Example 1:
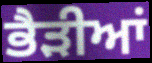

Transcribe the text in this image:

ਭੈੜੀਆਂ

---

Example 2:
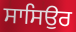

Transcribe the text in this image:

ਸਾਸਿਉਰ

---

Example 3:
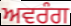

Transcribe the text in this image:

ਅਵਰੰਗ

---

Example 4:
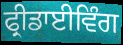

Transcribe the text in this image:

ਫ੍ਰੀਡਾਈਵਿੰਗ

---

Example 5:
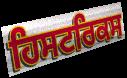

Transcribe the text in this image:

ਹਿਸਟਰਿਕਸ